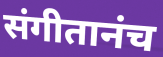
संगीतानंच